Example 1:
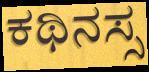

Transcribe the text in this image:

ಕಥಿನಸ್ಸ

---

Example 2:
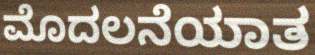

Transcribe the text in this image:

ಮೊದಲನೆಯಾತ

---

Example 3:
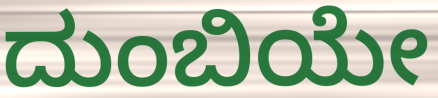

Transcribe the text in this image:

ದುಂಬಿಯೇ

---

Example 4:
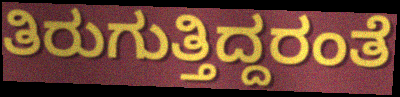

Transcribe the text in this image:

ತಿರುಗುತ್ತಿದ್ದರಂತೆ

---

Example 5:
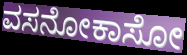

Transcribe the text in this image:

ವಸನೋಕಾಸೋ